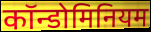
कॉन्डोमिनियम